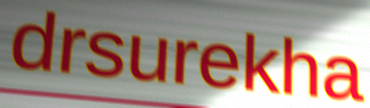
drsurekha